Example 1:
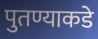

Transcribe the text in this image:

पुतण्याकडे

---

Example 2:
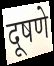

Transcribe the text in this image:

दूषणे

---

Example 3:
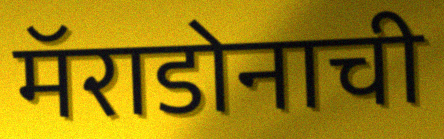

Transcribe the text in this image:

मॅराडोनाची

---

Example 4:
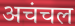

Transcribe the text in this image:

अचंचल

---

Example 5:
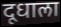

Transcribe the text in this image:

दूधाला